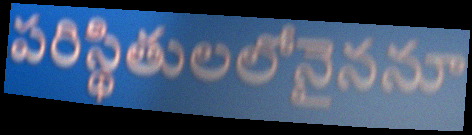
పరిస్థితులలోనైననూ